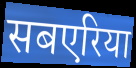
सबएरिया